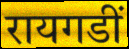
रायगडीं